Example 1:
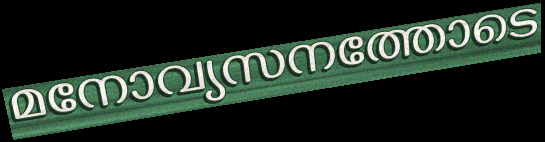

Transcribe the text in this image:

മനോവ്യസനത്തോടെ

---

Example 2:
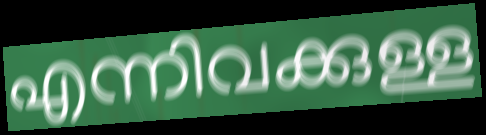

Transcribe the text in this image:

എന്നിവക്കുള്ള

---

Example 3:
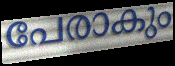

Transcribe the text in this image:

പേരാകും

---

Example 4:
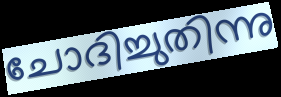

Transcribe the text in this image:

ചോദിച്ചുതിന്നു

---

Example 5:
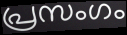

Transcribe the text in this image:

പ്രസംഗം